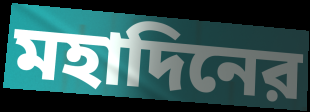
মহাদিনের